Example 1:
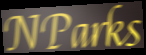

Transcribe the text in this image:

NParks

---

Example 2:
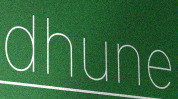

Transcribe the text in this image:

dhune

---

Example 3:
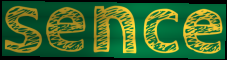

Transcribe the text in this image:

sence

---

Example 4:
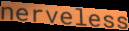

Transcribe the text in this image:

nerveless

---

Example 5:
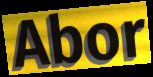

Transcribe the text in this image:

Abor